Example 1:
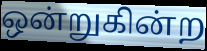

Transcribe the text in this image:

ஒன்றுகின்ற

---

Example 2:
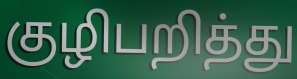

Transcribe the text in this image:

குழிபறித்து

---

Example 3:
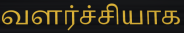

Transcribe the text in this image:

வளர்ச்சியாக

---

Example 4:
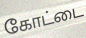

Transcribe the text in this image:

கோட்டை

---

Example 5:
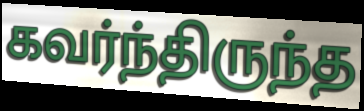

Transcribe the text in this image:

கவர்ந்திருந்த